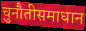
चुनौतीसमाधान